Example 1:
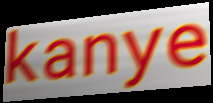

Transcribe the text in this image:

kanye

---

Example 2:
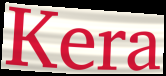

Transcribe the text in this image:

Kera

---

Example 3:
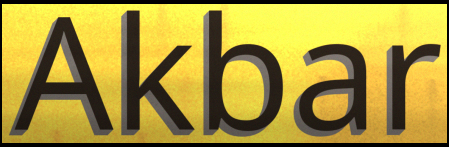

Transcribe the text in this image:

Akbar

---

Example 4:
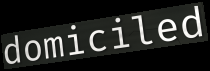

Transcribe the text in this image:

domiciled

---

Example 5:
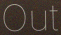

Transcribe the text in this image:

Out